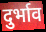
दुर्भाव